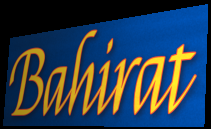
Bahirat